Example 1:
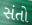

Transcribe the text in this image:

સંતો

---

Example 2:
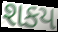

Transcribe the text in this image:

શકય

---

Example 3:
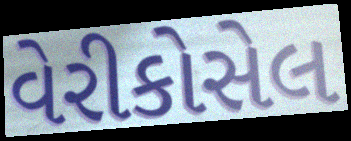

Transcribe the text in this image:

વેરીકોસેલ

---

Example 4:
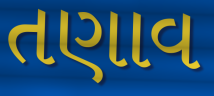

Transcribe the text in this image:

તણાવ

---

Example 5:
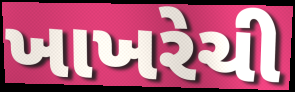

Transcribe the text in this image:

ખાખરેચી